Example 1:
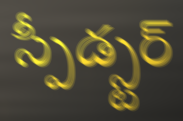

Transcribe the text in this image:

స్పీడ్స్టర్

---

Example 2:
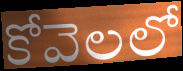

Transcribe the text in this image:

కోవెలలో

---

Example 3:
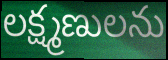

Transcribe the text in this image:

లక్ష్మణులను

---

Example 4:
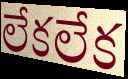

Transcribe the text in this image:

లేకలేక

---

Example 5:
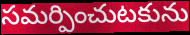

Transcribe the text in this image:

సమర్పించుటకును